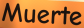
Muerte